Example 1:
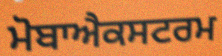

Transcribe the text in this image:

ਮੋਬਾਐਕਸਟਰਮ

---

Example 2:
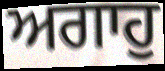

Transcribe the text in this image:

ਅਗਾਹੁ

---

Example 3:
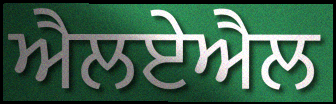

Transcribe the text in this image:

ਐਲਏਐਲ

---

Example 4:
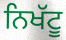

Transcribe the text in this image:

ਨਿਖੱਟੂ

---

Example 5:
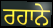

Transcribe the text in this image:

ਰਹਾਨੇ